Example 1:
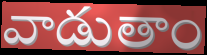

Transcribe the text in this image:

వాడుతాం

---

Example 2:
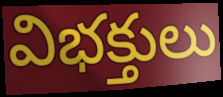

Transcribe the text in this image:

విభక్తులు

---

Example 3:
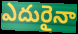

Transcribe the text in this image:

ఎదురైనా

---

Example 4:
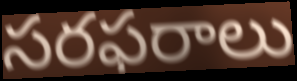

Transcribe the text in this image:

సరఫరాలు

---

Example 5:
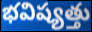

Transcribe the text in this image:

భవిష్యత్తు